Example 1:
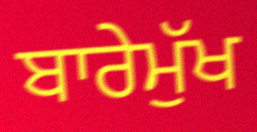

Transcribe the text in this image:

ਬਾਰੇਮੁੱਖ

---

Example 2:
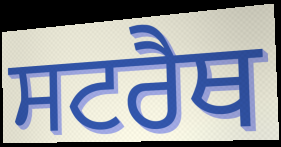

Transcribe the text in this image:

ਸਟਰੈਥ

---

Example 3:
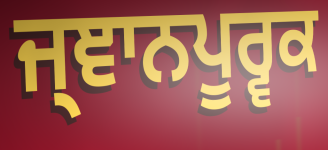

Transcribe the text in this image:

ਜ੍ਞਾਨਪੂਰ੍ਵਕ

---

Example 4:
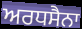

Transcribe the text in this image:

ਅਰਧਸੈਨਾ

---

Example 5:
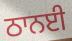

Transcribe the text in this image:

ਠਾਨਈ